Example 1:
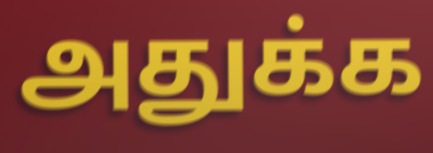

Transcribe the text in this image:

அதுக்க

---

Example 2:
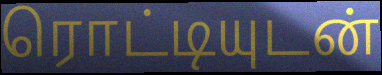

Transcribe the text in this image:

ரொட்டியுடன்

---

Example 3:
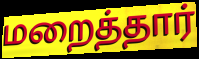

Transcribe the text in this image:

மறைத்தார்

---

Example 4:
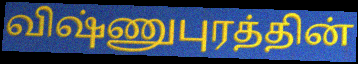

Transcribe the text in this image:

விஷ்ணுபுரத்தின்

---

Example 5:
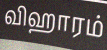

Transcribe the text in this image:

விஹாரம்